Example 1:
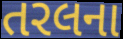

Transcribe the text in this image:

તરલના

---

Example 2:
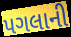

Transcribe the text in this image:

પગલાની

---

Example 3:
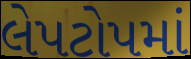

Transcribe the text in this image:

લેપટોપમાં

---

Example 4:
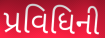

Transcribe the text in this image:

પ્રવિધિની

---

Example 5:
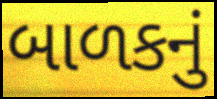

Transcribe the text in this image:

બાળકનું